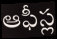
ఆఫీస్ల